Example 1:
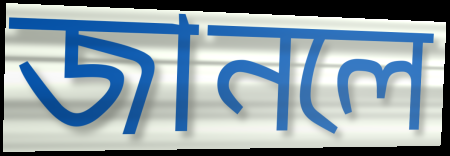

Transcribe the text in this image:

জানলে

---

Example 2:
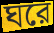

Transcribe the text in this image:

ঘরে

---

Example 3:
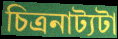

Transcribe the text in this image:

চিত্রনাট্যটা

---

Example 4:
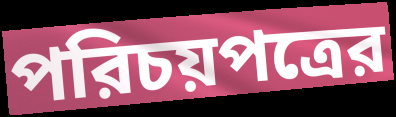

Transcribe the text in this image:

পরিচয়পত্রের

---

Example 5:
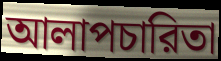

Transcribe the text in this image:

আলাপচারিতা